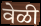
वेळी